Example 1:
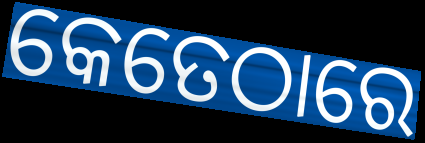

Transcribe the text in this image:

କେତେଠାରେ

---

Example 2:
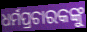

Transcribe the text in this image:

ଧର୍ମପ୍ରଚାରକଙ୍କୁ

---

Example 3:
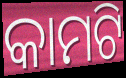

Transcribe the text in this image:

କାମଟି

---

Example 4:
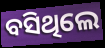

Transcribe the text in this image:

ବସିଥିଲେ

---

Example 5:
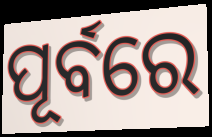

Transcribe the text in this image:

ପୂର୍ବରେ